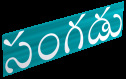
సంగడు